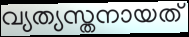
വ്യത്യസ്തനായത്